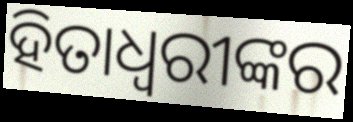
ହିତାଧ୍ଵରୀଙ୍କର